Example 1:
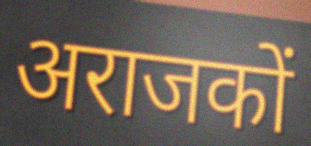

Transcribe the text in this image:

अराजकों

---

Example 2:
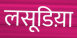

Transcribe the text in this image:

लसूडिय़ा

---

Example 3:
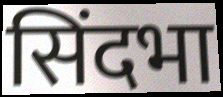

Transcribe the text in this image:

सिंदभा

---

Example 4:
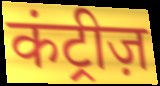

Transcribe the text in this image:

कंट्रीज़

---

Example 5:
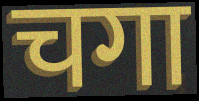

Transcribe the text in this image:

चगा